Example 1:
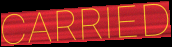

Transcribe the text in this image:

CARRIED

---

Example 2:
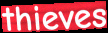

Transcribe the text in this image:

thieves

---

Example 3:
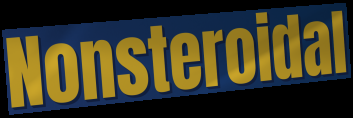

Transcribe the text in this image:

Nonsteroidal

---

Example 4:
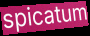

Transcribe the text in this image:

spicatum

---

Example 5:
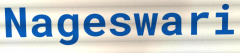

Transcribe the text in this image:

Nageswari